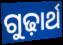
ଗୁଢ଼ାର୍ଥ